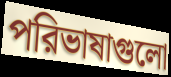
পরিভাষাগুলো